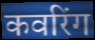
कवरिंग